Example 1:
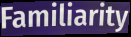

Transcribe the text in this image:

Familiarity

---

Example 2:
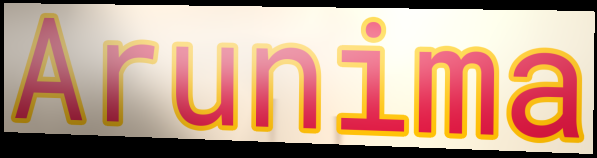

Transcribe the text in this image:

Arunima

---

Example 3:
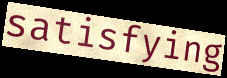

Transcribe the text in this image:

satisfying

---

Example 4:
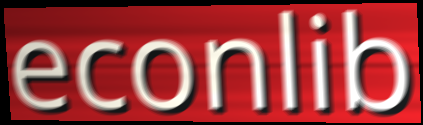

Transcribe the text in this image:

econlib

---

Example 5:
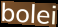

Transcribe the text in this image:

bolei